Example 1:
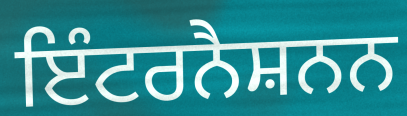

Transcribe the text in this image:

ਇੰਟਰਨੈਸ਼ਨਨ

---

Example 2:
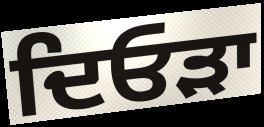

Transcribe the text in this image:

ਦਿਓੜਾ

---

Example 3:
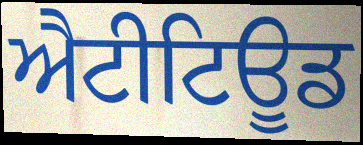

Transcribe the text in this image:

ਐਟੀਟਿਊਡ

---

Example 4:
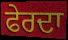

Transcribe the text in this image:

ਫੇਰਦਾ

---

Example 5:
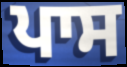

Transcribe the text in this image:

ਪਾਸ